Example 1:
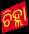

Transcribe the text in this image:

ଚିହ୍ଲା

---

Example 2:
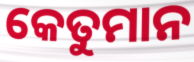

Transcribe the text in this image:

କେତୁମାନ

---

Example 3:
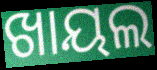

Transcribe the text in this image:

ଖାୟଲ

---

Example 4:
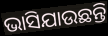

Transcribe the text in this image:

ଭାସିଯାଉଛନ୍ତି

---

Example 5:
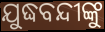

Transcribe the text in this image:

ଯୁଦ୍ଧବନ୍ଦୀଙ୍କୁ